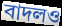
বাদলও